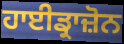
ਹਾਈਡ੍ਰਾਜ਼ੋਨ